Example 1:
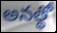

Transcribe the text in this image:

అనత్థో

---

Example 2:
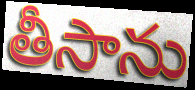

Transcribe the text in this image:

తీసాను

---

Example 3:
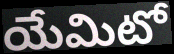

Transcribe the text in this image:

యేమిటో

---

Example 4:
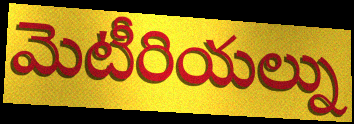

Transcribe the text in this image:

మెటీరియల్ను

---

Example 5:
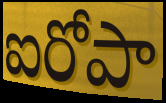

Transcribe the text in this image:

ఐరోపా